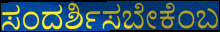
ಸಂದರ್ಶಿಸಬೇಕೆಂಬ